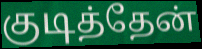
குடித்தேன்